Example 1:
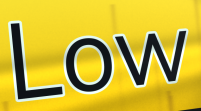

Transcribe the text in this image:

Low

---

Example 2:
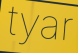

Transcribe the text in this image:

tyar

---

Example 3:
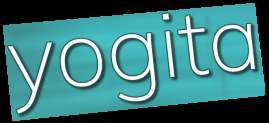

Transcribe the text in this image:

yogita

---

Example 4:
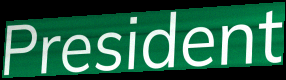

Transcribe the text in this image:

President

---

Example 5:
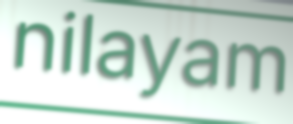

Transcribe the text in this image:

nilayam